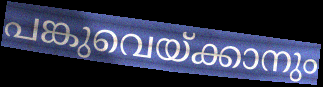
പങ്കുവെയ്ക്കാനും